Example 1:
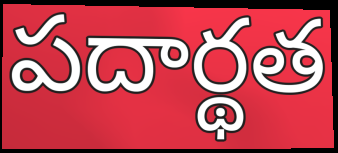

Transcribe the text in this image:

పదార్థత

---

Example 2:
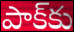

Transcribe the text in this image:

పాక్‌కు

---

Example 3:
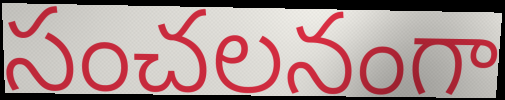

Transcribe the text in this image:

సంచలనంగా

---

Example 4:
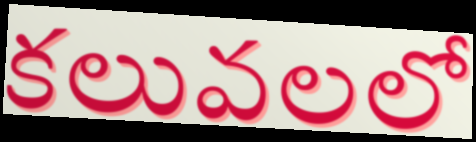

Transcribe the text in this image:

కలువలలో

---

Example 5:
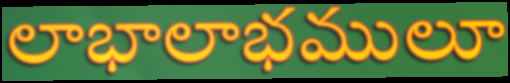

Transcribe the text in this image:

లాభాలాభములూ